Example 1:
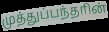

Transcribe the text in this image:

முத்துப்பந்தரின்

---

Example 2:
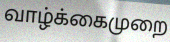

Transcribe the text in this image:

வாழ்க்கைமுறை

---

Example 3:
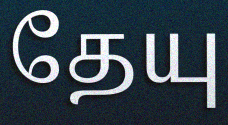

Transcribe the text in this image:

தேயு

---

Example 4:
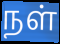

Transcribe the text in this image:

நள்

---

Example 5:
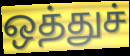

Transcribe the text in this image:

ஒத்துச்